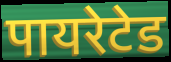
पायरेटेड